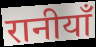
रानीयाँ